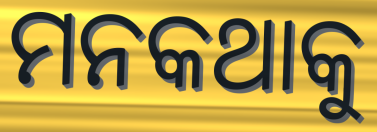
ମନକଥାକୁ